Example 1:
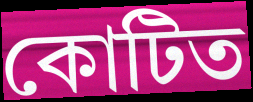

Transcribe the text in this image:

কোটিত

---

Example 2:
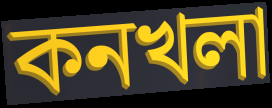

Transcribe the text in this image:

কনখলা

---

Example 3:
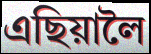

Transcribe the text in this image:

এছিয়ালৈ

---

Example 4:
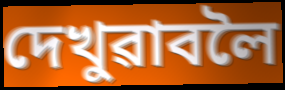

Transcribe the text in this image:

দেখুৱাবলৈ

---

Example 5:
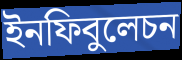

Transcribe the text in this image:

ইনফিবুলেচন